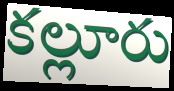
కల్లూరు